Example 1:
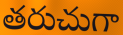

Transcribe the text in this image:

తరుచుగా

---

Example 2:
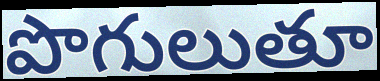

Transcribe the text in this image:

పొగులుతూ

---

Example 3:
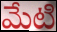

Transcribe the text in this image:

మేటి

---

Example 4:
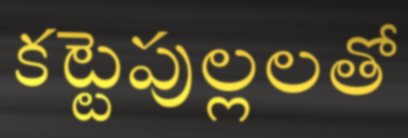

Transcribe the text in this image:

కట్టెపుల్లలతో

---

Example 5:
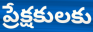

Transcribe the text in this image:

ప్రేక్షకులకు